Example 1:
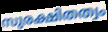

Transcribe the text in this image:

സുരക്ഷിതത്വം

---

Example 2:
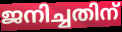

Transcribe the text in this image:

ജനിച്ചതിന്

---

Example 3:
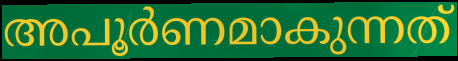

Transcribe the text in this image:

അപൂർണമാകുന്നത്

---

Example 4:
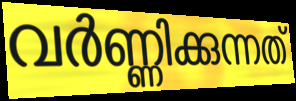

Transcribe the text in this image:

വർണ്ണിക്കുന്നത്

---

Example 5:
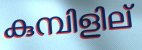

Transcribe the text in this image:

കുമ്പിളില്